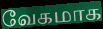
வேகமாக